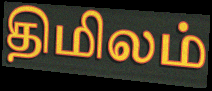
திமிலம்